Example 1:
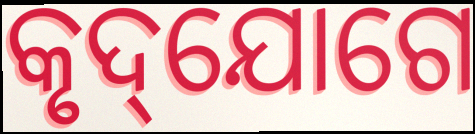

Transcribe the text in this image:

କୃଦ୍‌ଯୋଗେ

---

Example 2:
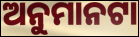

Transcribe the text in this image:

ଅନୁମାନଟା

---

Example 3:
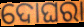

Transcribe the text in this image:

ଦୋଘରା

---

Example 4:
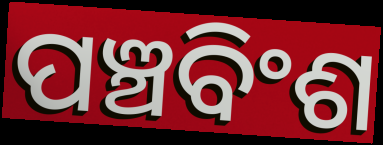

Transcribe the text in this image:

ପଞ୍ଚବିଂଶ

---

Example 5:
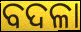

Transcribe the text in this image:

ବଦଳା